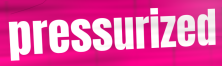
pressurized